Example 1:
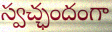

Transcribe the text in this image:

స్వచ్ఛందంగా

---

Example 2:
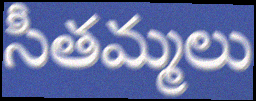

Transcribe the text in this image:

సీతమ్మలు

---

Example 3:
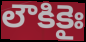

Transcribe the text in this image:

లౌకికైః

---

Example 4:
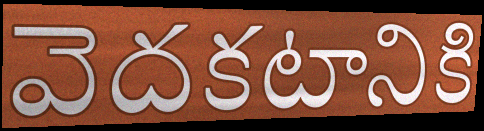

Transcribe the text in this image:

వెదకటానికి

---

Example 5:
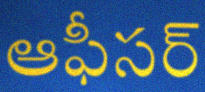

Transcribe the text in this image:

ఆఫీసర్